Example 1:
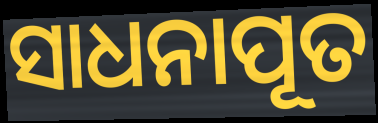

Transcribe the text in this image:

ସାଧନାପୂତ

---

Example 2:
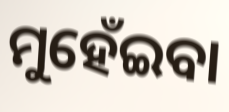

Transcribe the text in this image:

ମୁହେଁଇବା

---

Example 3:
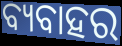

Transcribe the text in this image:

ବ୍ୟବାହର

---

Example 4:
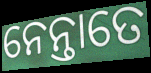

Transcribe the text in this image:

ନେନ୍ତାତେ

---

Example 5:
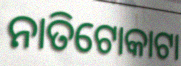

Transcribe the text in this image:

ନାତିଟୋକାଟା